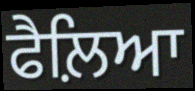
ਫੈਲ਼ਿਆ